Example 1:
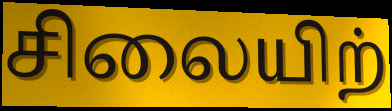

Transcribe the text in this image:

சிலையிற்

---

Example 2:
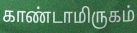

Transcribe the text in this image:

காண்டாமிருகம்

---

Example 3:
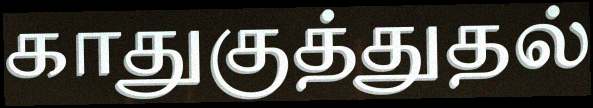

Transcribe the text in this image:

காதுகுத்துதல்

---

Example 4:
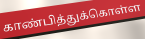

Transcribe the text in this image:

காண்பித்துக்கொள்ள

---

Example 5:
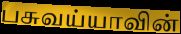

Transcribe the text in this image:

பசுவய்யாவின்